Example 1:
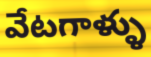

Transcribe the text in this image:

వేటగాళ్ళు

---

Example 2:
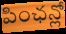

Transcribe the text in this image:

పింఛన్లో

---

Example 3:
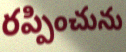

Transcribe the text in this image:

రప్పించును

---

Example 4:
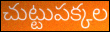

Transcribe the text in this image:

చుట్టుపక్కల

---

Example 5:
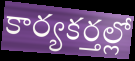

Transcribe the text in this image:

కార్యకర్తల్లో